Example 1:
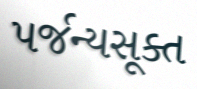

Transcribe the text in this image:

પર્જન્યસૂક્ત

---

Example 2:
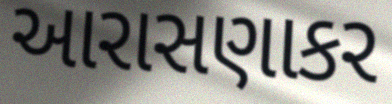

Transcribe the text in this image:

આરાસણાકર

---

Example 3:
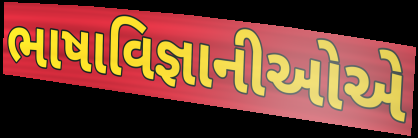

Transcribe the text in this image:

ભાષાવિજ્ઞાનીઓએ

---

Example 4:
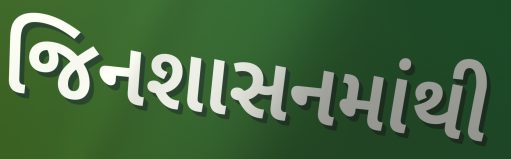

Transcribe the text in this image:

જિનશાસનમાંથી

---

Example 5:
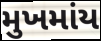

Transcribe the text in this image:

મુખમાંય